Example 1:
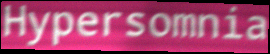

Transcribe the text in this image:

Hypersomnia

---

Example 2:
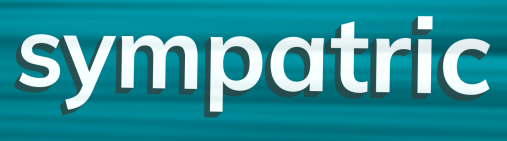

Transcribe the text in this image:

sympatric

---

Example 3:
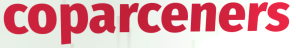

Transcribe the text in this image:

coparceners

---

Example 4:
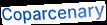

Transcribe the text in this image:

Coparcenary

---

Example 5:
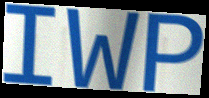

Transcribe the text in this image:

IWP